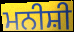
ਮਨੀਸ਼ੀ